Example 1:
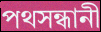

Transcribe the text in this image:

পথসন্ধানী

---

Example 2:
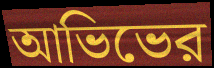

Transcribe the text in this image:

আভিভের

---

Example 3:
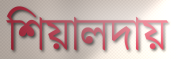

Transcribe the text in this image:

শিয়ালদায়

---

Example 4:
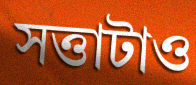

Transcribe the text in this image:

সত্তাটাও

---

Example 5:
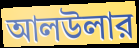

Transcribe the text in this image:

আলউলার